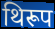
थिरूप